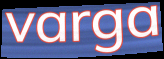
varga